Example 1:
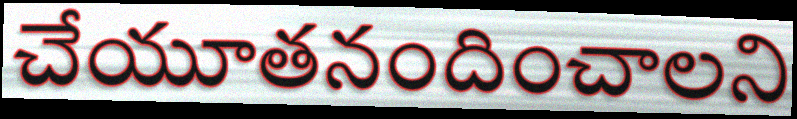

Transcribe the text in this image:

చేయూతనందించాలని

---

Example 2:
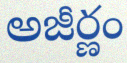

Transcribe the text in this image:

అజీర్ణం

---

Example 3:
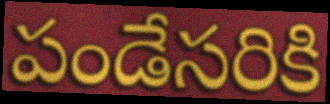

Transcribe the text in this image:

పండేసరికి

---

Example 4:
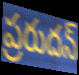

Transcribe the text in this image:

ప్రరుదన్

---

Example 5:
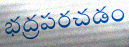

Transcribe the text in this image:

భద్రపరచడం